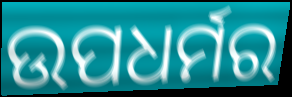
ଉପଧର୍ମର